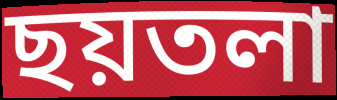
ছয়তলা